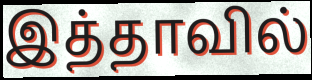
இத்தாவில்